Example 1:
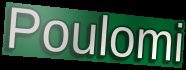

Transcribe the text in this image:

Poulomi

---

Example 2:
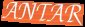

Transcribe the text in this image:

ANTAR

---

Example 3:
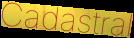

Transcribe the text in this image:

Cadastral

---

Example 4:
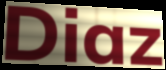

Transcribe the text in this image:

Diaz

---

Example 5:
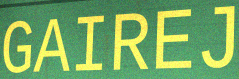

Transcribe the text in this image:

GAIREJ